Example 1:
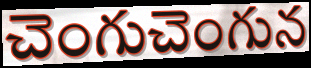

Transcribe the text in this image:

చెంగుచెంగున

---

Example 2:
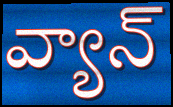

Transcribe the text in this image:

వ్యాన్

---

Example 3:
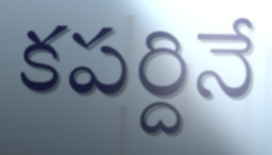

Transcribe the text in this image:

కపర్దినే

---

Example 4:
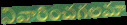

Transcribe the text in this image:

నివారించగలమా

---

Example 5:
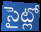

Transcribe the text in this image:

సైట్లో